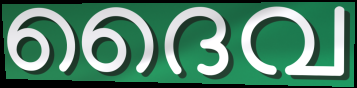
ദൈവ